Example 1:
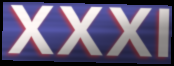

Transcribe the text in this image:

XXXI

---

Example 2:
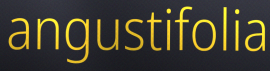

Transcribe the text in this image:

angustifolia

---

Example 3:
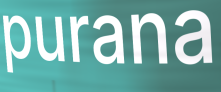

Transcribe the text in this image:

purana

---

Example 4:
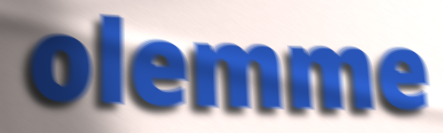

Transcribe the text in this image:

olemme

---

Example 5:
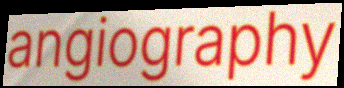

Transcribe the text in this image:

angiography